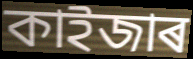
কাইজাৰ